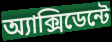
অ্যাক্সিডেন্টে